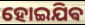
ହୋଇଯିଵ